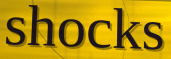
shocks